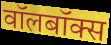
वॉलबॉक्स